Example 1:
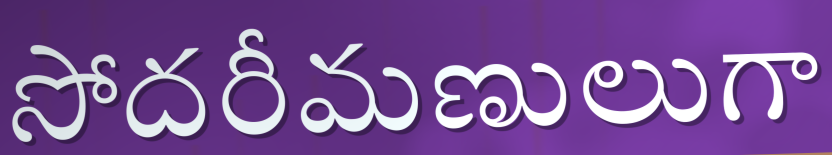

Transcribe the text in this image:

సోదరీమణులుగా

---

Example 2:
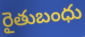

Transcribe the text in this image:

రైతుబంధు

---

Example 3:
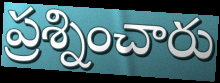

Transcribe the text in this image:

ప్రశ్నించారు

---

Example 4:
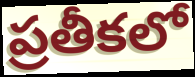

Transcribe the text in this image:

ప్రతీకలో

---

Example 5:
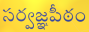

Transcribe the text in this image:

సర్వజ్ఞపీఠం